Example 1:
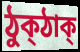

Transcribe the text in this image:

ঠুক্ঠাক্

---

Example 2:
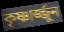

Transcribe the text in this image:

কৃষ্ণার্জ্জুন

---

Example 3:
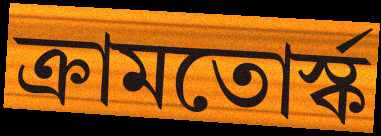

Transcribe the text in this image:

ক্রামতোর্স্ক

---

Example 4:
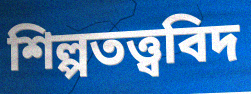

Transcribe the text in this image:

শিল্পতত্ত্ববিদ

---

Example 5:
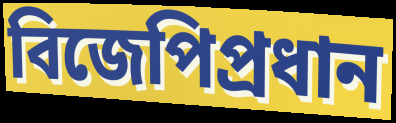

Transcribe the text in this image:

বিজেপিপ্রধান